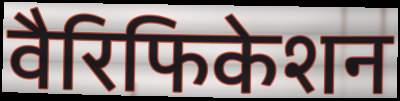
वैरिफिकेशन